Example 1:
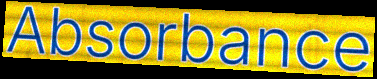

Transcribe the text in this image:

Absorbance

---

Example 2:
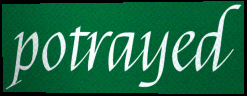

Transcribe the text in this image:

potrayed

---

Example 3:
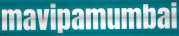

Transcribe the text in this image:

mavipamumbai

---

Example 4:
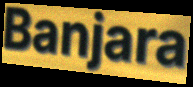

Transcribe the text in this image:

Banjara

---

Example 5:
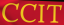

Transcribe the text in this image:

CCIT